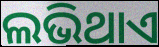
ଲଭିଥାଏ